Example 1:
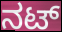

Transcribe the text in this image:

ನಟ್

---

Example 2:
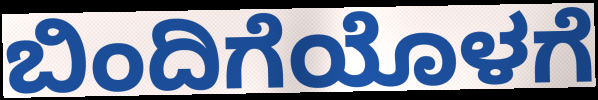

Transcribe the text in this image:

ಬಿಂದಿಗೆಯೊಳಗೆ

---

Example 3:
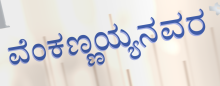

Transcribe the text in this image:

ವೆಂಕಣ್ಣಯ್ಯನವರ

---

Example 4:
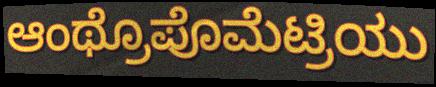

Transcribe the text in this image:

ಆಂಥ್ರೊಪೊಮೆಟ್ರಿಯು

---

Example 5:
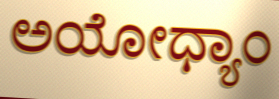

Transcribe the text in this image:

ಅಯೋಧ್ಯಾಂ